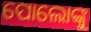
ପୋଲୋଙ୍କୁ